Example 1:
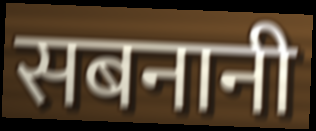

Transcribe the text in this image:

सबनानी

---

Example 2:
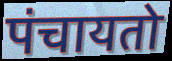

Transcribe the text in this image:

पंचायतो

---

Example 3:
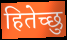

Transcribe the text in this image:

हितेच्छु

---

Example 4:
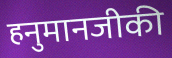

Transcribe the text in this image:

हनुमानजीकी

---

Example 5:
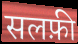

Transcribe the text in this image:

सलफ़ी